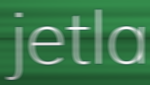
jetla